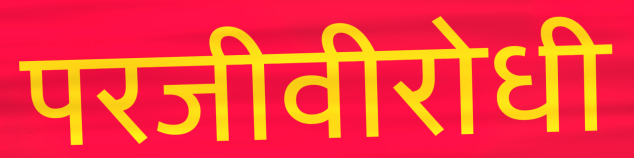
परजीवीरोधी